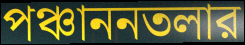
পঞ্চাননতলার